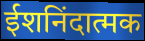
ईशनिंदात्मक